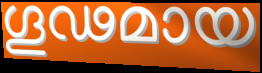
ഗൂഢമായ